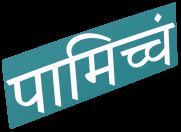
पामिच्चं